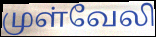
முள்வேலி